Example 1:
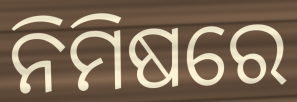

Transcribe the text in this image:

ନିମିଷରେ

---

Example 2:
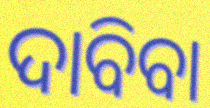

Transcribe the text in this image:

ଦାବିବା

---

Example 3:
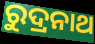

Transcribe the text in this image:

ରୁଦ୍ରନାଥ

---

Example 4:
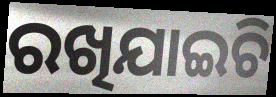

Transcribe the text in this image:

ରଖିଯାଇଚି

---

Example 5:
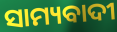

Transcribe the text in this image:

ସାମ୍ୟବାଦୀ